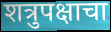
शत्रुपक्षाचा